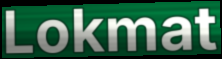
Lokmat